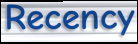
Recency